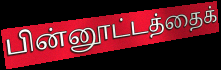
பின்னூட்டத்தைக்